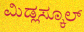
ಮಿಡ್ಲಸ್ಕೂಲ್